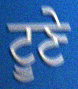
ਟੂਣੇ